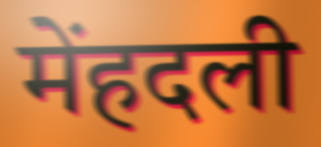
मेंहदली